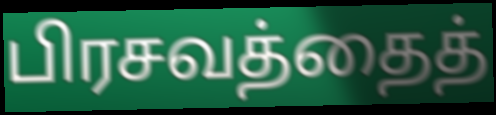
பிரசவத்தைத்